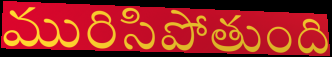
మురిసిపోతుంది